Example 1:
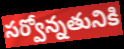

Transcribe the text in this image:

సర్వోన్నతునికి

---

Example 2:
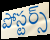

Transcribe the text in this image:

పోస్టర్స్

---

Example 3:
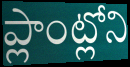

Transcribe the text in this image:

ప్లాంట్లోని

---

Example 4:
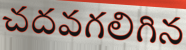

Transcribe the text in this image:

చదవగలిగిన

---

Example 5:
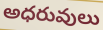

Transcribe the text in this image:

అధరువులు